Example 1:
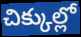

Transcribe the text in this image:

చిక్కుల్లో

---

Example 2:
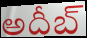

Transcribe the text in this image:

అదీబ్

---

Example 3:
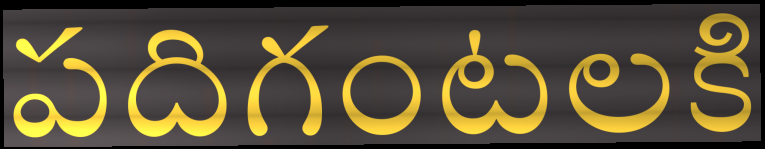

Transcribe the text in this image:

పదిగంటలకి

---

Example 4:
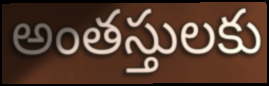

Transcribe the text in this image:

అంతస్తులకు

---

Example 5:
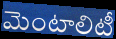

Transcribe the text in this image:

మెంటాలిటీ